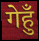
गेहुँ